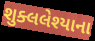
શુક્લલેશ્યાના